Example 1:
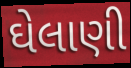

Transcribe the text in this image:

ઘેલાણી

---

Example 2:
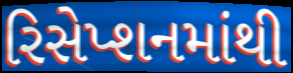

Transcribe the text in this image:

રિસેપ્શનમાંથી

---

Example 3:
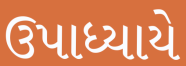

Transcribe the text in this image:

ઉપાધ્યાયે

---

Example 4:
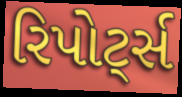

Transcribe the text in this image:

રિપોર્ટ્સ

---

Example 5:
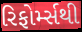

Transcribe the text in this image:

રિફોર્મ્સથી